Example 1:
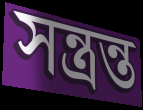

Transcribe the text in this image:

সন্ত্রন্ত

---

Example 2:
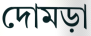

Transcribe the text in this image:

দোমড়া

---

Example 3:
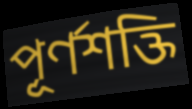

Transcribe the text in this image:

পূর্ণশক্তি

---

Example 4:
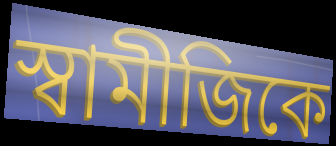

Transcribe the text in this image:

স্বামীজিকে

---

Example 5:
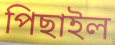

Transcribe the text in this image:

পিছাইল